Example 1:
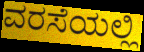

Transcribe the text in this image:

ವರಸೆಯಲ್ಲಿ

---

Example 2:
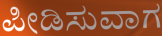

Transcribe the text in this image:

ಪೀಡಿಸುವಾಗ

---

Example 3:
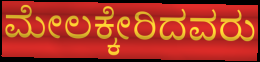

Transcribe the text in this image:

ಮೇಲಕ್ಕೇರಿದವರು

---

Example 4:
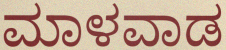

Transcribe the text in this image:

ಮಾಳವಾಡ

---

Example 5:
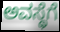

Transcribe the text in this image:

ಅವಸ್ಥೆಗೆ